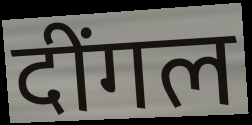
दींगल